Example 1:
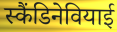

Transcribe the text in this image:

स्कैंडिनेवियाई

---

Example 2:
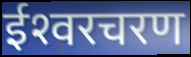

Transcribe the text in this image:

ईश्वरचरण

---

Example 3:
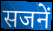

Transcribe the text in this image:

सजनें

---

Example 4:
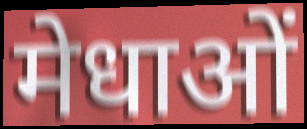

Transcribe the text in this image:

मेधाओं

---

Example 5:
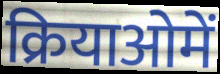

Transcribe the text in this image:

क्रियाओमें